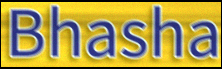
Bhasha